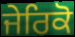
ਜੇਰਿਕੋ